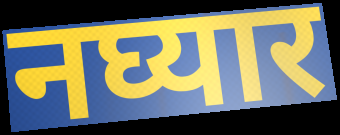
नघ्यार